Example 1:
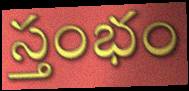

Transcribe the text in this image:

స్తంభం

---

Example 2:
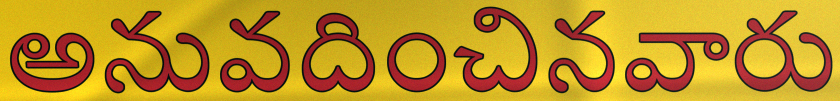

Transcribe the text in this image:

అనువదించినవారు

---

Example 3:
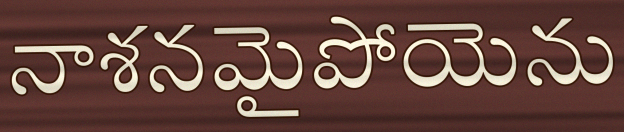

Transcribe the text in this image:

నాశనమైపోయెను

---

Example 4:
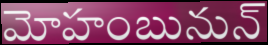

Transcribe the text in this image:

మోహంబునున్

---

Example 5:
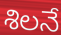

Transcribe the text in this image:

శిలనే